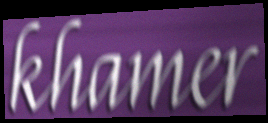
khamer